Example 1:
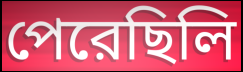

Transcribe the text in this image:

পেরেছিলি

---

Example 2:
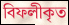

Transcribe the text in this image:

বিফলীকৃত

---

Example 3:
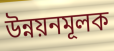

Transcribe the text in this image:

উন্নয়নমূলক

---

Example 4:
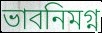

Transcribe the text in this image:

ভাবনিমগ্ন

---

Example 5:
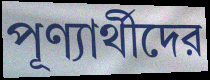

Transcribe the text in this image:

পূণ্যার্থীদের